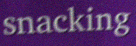
snacking